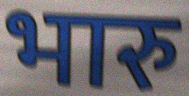
भारु